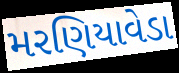
મરણિયાવેડા